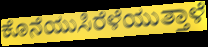
ಕೊನೆಯುಸಿರೆಳೆಯುತ್ತಾಳೆ